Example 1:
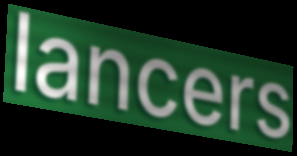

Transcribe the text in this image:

lancers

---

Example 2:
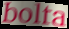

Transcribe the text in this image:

bolta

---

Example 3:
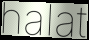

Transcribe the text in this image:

halat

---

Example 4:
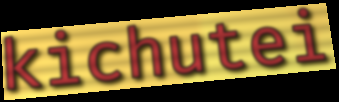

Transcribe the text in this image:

kichutei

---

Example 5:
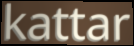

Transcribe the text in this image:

kattar